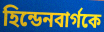
হিন্ডেনবার্গকে